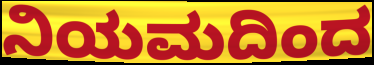
ನಿಯಮದಿಂದ